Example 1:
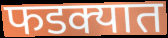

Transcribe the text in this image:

फडक्यात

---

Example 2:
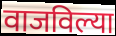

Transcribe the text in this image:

वाजविल्या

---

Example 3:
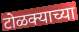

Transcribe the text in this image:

टोळक्याच्या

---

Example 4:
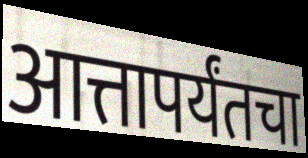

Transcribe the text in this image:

आत्तापर्यंतचा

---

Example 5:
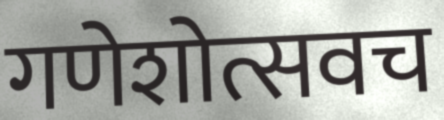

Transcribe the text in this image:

गणेशोत्सवच